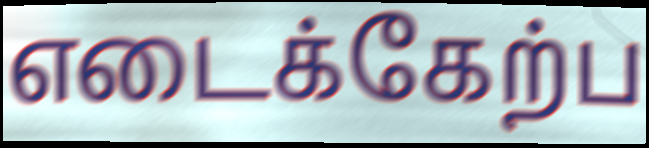
எடைக்கேற்ப